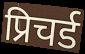
प्रिचर्ड